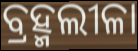
ବ୍ରହ୍ମଲୀଳା